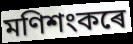
মণিশংকৰে